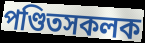
পণ্ডিতসকলক